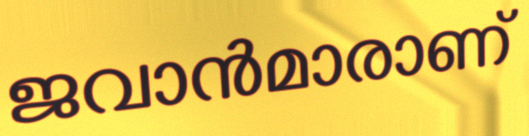
ജവാൻമാരാണ്